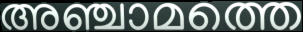
അഞ്ചാമത്തെ